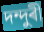
দন্দুৰী